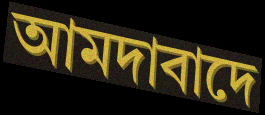
আমদাবাদে